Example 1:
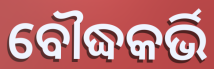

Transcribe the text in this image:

ବୌଦ୍ଧକର୍ଭି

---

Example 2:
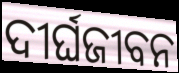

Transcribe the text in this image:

ଦୀର୍ଘଜୀବନ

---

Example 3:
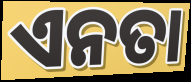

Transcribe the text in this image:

ଏନତା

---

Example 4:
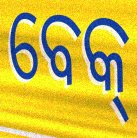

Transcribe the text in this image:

ବେକ୍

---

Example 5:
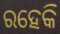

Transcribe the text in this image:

ରହେକି